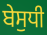
ਬੇਸੁਧੀ